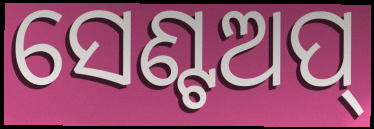
ସେଣ୍ଟଅପ୍